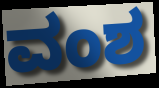
ವಂಶ